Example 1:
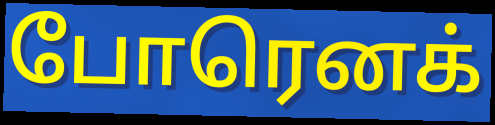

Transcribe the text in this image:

போரெனக்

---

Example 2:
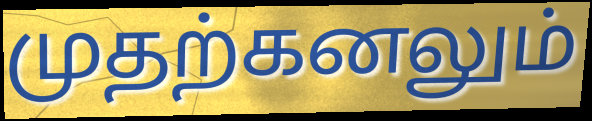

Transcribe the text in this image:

முதற்கனலும்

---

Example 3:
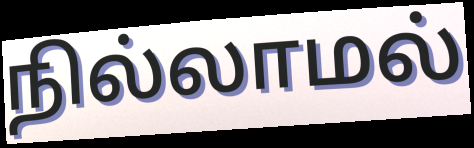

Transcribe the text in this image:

நில்லாமல்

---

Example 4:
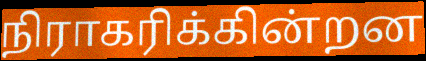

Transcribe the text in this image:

நிராகரிக்கின்றன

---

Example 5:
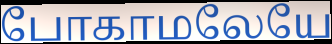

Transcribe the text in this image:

போகாமலேயே